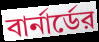
বার্নার্ডের